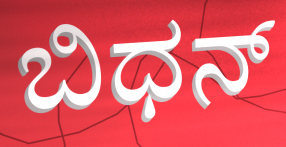
ಬಿಧನ್